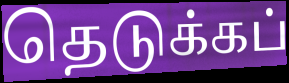
தெடுக்கப்